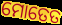
ମୋତେତ